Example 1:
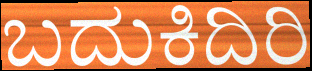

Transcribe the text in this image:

ಬದುಕಿದಿರಿ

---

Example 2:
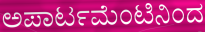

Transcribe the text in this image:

ಅಪಾರ್ಟಮೆಂಟಿನಿಂದ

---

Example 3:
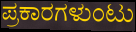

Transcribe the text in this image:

ಪ್ರಕಾರಗಳುಂಟು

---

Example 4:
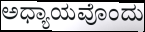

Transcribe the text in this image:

ಅಧ್ಯಾಯವೊಂದು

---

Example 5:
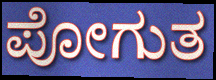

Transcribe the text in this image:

ಪೋಗುತ